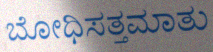
ಬೋಧಿಸತ್ತಮಾತು